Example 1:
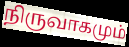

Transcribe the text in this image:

நிருவாகமும்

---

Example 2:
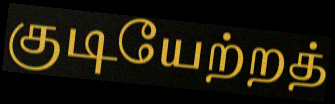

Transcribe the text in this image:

குடியேற்றத்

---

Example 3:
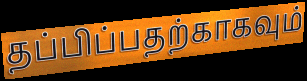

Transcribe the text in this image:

தப்பிப்பதற்காகவும்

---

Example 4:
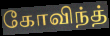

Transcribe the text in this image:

கோவிந்த்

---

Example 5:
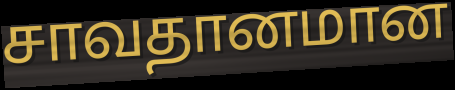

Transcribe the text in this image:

சாவதானமான